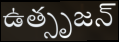
ఉత్సృజన్